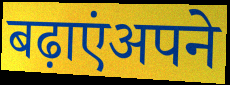
बढ़ाएंअपने